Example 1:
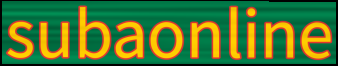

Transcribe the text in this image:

subaonline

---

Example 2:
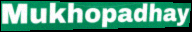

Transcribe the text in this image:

Mukhopadhay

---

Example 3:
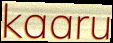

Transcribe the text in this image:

kaaru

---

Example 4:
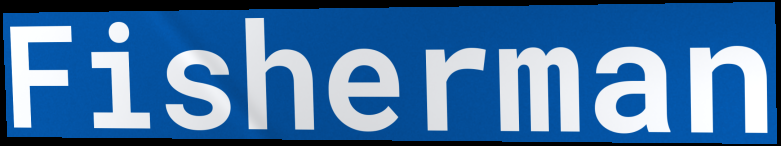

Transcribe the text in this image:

Fisherman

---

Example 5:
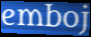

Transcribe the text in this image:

emboj